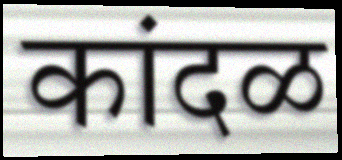
कांदळ